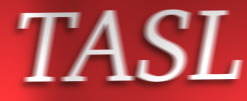
TASL